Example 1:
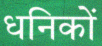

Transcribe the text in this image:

धनिकों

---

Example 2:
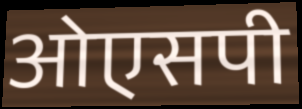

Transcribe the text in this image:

ओएसपी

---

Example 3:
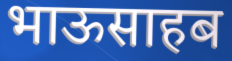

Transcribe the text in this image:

भाऊसाहब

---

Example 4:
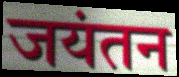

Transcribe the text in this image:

जयंतन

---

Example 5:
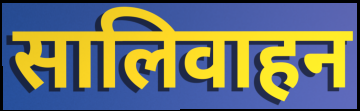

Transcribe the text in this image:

सालिवाहन